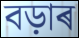
বড়াৰ